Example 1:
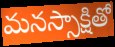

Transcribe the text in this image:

మనస్సాక్షితో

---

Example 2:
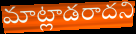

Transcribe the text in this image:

మాట్లాడరాదని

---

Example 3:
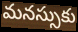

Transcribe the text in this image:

మనస్సుకు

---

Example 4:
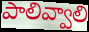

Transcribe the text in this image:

పాలివ్వాలి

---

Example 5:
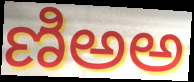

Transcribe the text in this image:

ణిఅఅ